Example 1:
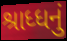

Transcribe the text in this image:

શ્રાધ્ધનું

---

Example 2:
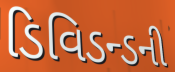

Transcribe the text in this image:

ડિવિડન્ડની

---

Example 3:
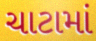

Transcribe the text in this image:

ચાટામાં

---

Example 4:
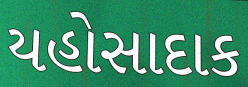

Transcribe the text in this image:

યહોસાદાક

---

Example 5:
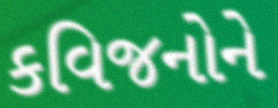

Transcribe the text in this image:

કવિજનોને